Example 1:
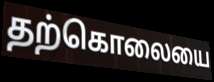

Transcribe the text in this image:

தற்கொலையை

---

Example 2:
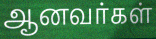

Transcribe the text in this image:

ஆனவர்கள்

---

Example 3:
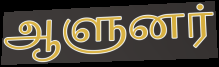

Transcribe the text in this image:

ஆளுனர்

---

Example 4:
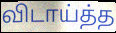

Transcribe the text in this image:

விடாய்த்த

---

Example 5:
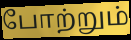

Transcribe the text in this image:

போற்றும்